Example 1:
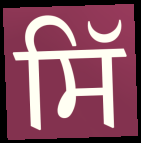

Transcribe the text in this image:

ਸਿੱ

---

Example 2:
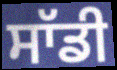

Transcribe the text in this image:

ਸਾੱਡੀ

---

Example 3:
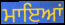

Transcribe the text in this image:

ਮਾਇਆਂ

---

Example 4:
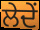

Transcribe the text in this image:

ਲੇਦੇਂ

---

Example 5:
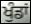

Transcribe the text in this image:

ਖੁੰਡਾਂ